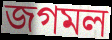
জগমল